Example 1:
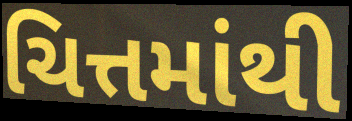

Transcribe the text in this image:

ચિત્તમાંથી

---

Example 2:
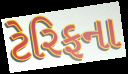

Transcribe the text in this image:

ટેરિફના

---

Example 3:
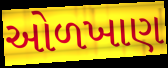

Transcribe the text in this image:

ઓળખાણ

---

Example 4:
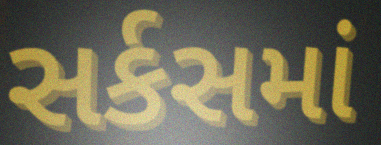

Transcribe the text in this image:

સર્કસમાં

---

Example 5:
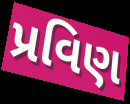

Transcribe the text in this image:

પ્રવિણ